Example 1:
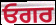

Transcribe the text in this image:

ਓਗਰ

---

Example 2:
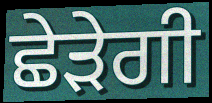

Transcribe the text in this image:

ਛੇੜੇਗੀ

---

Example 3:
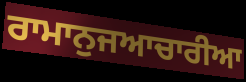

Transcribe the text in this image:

ਰਾਮਾਨੁਜਆਚਾਰੀਆ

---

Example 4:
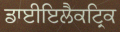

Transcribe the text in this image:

ਡਾਈਇਲੈਕਟ੍ਰਿਕ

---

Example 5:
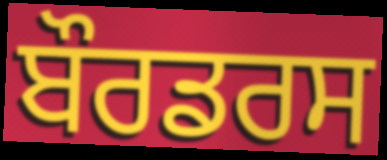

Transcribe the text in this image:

ਬੌਰਡਰਸ